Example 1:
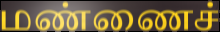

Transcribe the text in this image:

மண்ணைச்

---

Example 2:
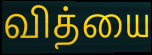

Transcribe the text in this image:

வித்யை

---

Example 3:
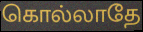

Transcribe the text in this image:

கொல்லாதே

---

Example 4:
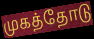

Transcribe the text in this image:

முகத்தோடு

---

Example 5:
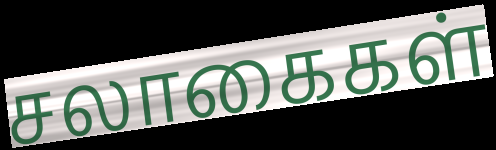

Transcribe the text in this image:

சலாகைகள்